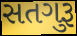
સતગુરૂ